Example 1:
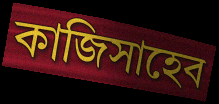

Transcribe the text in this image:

কাজিসাহেব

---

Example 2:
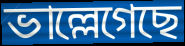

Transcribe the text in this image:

ভাল্লেগেছে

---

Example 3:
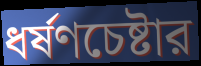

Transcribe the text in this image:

ধর্ষণচেষ্টার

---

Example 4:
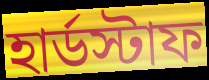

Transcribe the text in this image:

হার্ডস্টাফ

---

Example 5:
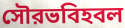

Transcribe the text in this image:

সৌরভবিহবল